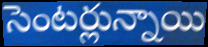
సెంటర్లున్నాయి